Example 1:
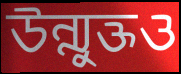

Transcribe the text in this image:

উন্মুক্তও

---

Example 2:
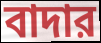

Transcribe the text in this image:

বাদার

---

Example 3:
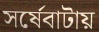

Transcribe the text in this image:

সর্ষেবাটায়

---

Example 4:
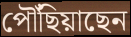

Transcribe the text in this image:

পৌঁছিয়াছেন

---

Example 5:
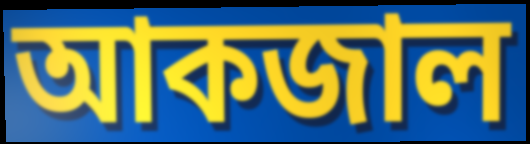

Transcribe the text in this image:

আকজাল